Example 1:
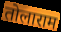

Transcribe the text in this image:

तोलाराम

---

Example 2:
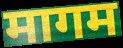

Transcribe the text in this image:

मागम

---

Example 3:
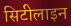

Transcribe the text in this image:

सिटीलाइन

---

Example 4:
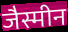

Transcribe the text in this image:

जैस्‍मीन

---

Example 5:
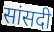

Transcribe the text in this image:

सांसदी